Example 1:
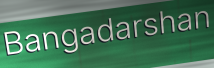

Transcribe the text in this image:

Bangadarshan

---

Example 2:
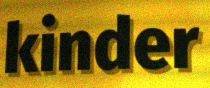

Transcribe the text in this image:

kinder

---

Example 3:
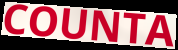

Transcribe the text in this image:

COUNTA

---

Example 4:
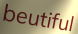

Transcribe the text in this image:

beutiful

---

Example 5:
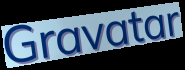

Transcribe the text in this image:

Gravatar